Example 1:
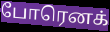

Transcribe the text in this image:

போரெனக்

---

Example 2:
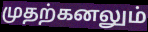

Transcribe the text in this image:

முதற்கனலும்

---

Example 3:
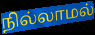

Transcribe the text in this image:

நில்லாமல்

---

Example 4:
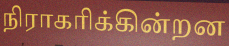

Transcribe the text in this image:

நிராகரிக்கின்றன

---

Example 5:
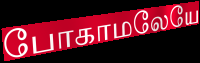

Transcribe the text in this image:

போகாமலேயே